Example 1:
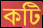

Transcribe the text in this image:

কটি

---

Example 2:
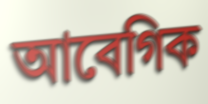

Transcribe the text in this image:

আবেগিক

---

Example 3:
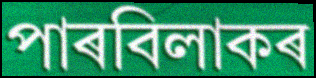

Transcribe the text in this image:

পাৰবিলাকৰ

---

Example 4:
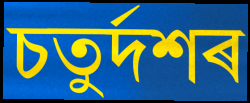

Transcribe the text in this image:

চতুৰ্দশৰ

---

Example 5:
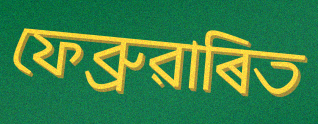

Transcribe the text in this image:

ফেব্ৰুৱাৰিত